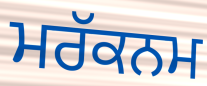
ਮਰੱਕਨਮ